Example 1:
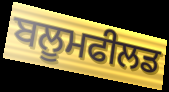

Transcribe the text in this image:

ਬਲੂਮਫੀਲਡ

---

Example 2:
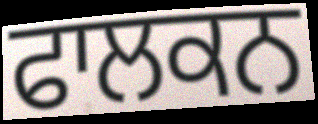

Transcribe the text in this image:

ਫਾਲਕਨ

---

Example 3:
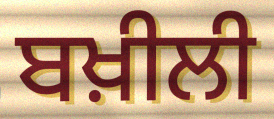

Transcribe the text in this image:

ਬਖ਼ੀਲੀ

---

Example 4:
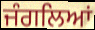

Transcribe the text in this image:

ਜੰਗਲਿਆਂ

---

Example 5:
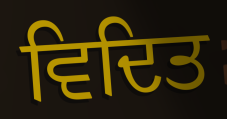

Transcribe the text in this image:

ਵਿਦਿਤ